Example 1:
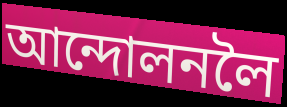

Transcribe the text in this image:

আন্দোলনলৈ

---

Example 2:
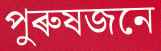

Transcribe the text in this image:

পুৰুষজনে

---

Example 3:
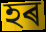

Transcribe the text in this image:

হৰ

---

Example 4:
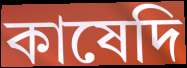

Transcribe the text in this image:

কাষেদি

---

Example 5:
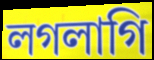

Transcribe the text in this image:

লগলাগি